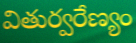
వితుర్వరేణ్యం